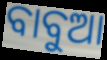
ବାବୁଆ